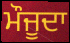
ਮੌਜੂਦਾ